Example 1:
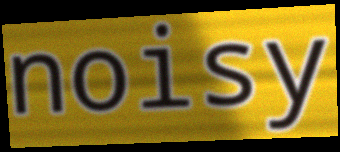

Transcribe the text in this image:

noisy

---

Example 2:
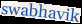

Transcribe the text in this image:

swabhavik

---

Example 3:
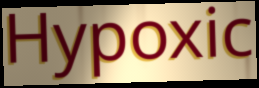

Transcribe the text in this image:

Hypoxic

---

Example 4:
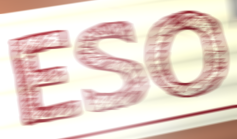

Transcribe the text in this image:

ESO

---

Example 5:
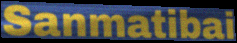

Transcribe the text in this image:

Sanmatibai